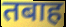
तबाह